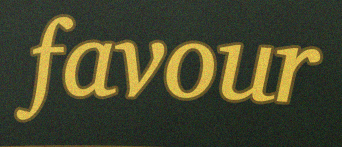
favour